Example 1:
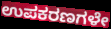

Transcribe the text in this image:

ಉಪಕರಣಗಳೇ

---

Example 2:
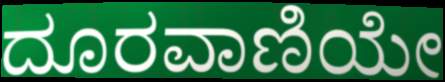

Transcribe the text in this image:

ದೂರವಾಣಿಯೇ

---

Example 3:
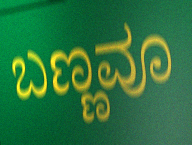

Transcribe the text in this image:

ಬಣ್ಣವೂ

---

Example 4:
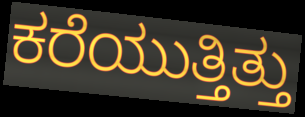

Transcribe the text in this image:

ಕರೆಯುತ್ತಿತ್ತು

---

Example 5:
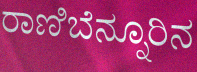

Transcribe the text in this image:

ರಾಣಿಬೆನ್ನೂರಿನ